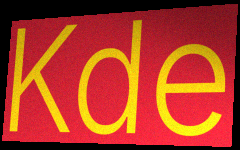
Kde